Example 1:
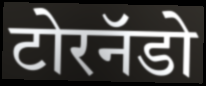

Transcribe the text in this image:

टोरनॅडो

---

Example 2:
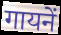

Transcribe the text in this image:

गायनें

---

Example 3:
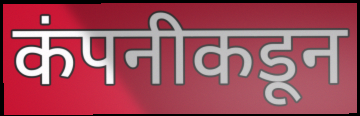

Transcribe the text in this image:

कंपनीकडून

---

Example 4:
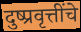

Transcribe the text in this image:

दुष्प्रवृत्तींचे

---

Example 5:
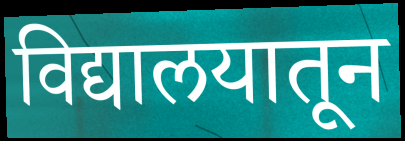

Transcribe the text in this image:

विद्यालयातून